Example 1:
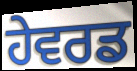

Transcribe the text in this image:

ਹੇਵਰਡ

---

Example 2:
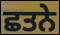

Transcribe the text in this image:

ਛਤਨੇ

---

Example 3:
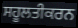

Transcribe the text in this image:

ਸਹੂਲਤੀਕਰਨ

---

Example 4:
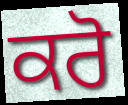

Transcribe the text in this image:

ਕਰੋ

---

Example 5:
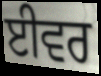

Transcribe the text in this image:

ਈਵਰ